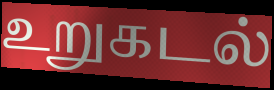
உறுகடல்